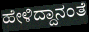
ಹೇಳಿದ್ದಾನಂತೆ